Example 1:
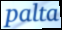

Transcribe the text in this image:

palta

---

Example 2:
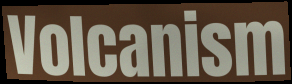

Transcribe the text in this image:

Volcanism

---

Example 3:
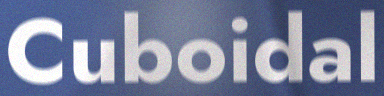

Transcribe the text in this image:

Cuboidal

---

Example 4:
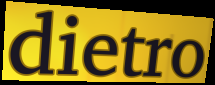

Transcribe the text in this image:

dietro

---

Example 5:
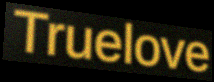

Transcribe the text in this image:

Truelove